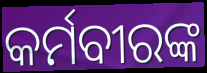
କର୍ମବୀରଙ୍କ